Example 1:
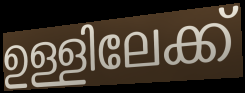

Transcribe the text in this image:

ഉള്ളിലേക്ക്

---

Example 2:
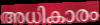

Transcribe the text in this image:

അധികാരം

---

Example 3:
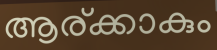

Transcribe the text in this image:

ആര്ക്കാകും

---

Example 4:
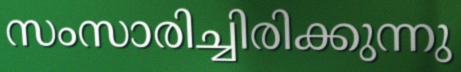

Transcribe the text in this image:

സംസാരിച്ചിരിക്കുന്നു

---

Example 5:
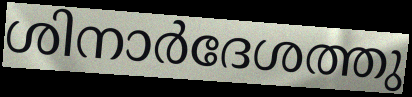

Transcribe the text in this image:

ശിനാർദേശത്തു